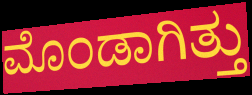
ಮೊಂಡಾಗಿತ್ತು